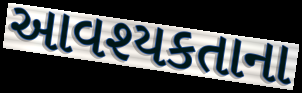
આવશ્યકતાના